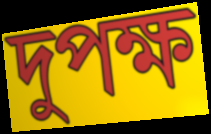
দুপক্ষ